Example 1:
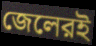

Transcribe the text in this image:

জেলেরই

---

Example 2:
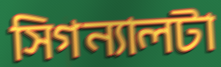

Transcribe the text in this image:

সিগন্যালটা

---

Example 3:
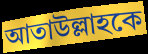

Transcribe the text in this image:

আতাউল্লাহকে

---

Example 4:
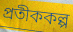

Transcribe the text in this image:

প্রতীককল্প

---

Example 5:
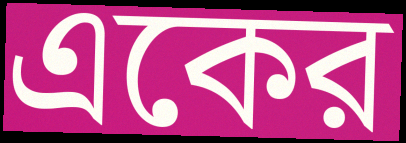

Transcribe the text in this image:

একের